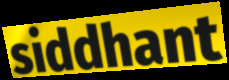
siddhant